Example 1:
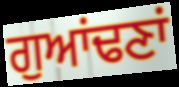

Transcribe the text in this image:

ਗੁਆਂਢਣਾਂ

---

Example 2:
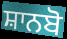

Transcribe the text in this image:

ਸ਼ਾਨਬੋ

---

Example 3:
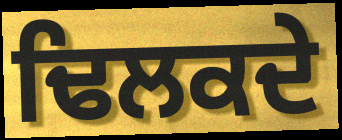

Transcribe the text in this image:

ਢਿਲਕਦੇ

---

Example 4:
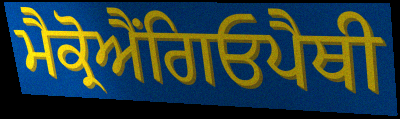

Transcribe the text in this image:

ਮੈਕ੍ਰੋਐਂਗਿਓਪੈਥੀ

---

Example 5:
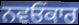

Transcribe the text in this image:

ਨਵਓਂਕਾਰ